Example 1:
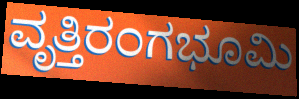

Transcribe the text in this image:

ವೃತ್ತಿರಂಗಭೂಮಿ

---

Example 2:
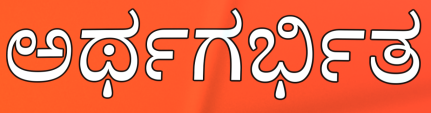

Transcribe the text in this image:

ಅರ್ಥಗರ್ಭಿತ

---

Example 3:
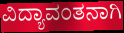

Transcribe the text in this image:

ವಿದ್ಯಾವಂತನಾಗಿ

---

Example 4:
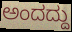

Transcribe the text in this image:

ಅಂದದ್ದು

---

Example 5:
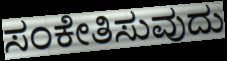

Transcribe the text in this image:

ಸಂಕೇತಿಸುವುದು